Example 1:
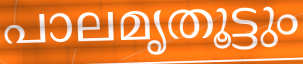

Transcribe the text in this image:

പാലമൃതൂട്ടും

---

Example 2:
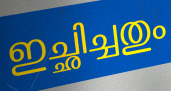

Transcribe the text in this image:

ഇച്ഛിച്ചതും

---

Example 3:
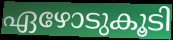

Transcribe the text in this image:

ഏഴോടുകൂടി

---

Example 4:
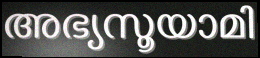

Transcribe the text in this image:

അഭ്യസൂയാമി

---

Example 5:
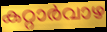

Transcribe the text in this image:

കറ്റാർവാഴ